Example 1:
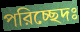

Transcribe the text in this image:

পরিচ্ছেদঃ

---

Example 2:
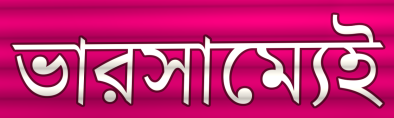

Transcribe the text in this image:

ভারসাম্যেই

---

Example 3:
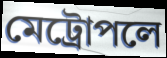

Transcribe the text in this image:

মেট্রোপলে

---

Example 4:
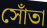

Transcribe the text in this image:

সোঁতা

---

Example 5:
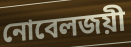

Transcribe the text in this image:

নোবেলজয়ী